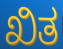
ಖಿತ